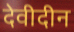
देवीदीन